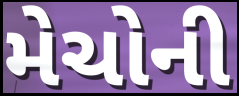
મેચોની